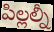
పిల్లల్నీ